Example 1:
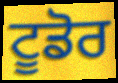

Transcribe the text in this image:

ਟੂਡੋਰ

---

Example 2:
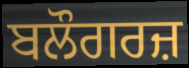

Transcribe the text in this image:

ਬਲੌਗਰਜ਼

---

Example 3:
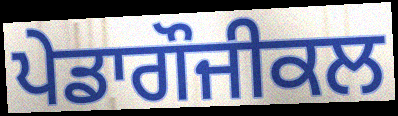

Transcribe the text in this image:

ਪੇਡਾਗੌਜੀਕਲ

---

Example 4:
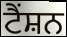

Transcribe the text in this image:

ਟੈਂਸ਼ਨ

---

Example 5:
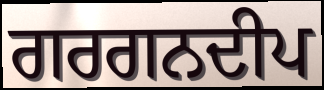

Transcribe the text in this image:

ਗਰਗਨਦੀਪ